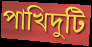
পাখিদুটি